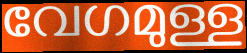
വേഗമുള്ള